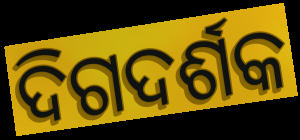
ଦିଗଦର୍ଶକ